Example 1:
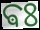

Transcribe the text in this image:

ଵଃ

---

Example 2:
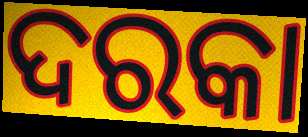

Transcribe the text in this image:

ଦରକା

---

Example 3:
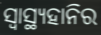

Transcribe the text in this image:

ସ୍ଵାସ୍ଥ୍ୟହାନିର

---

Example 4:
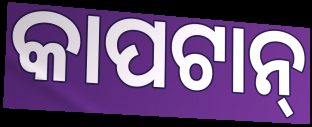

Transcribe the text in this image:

କାପଟାନ୍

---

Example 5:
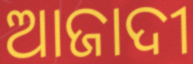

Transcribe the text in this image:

ଆଜାଦୀ